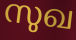
സുഖ